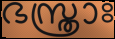
ഭസ്ത്രാഃ